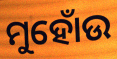
ମୁହୋଁଉ